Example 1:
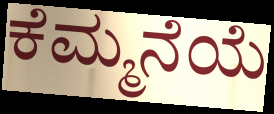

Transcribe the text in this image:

ಕೆಮ್ಮನೆಯೆ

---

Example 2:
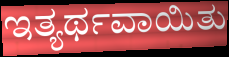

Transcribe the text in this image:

ಇತ್ಯರ್ಥವಾಯಿತು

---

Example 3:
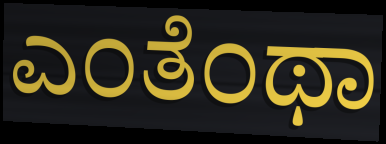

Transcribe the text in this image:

ಎಂತೆಂಥಾ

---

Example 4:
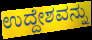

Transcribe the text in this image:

ಉದ್ದೇಶವನ್ನು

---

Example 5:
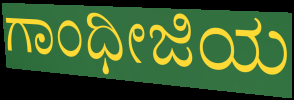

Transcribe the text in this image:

ಗಾಂಧೀಜಿಯ